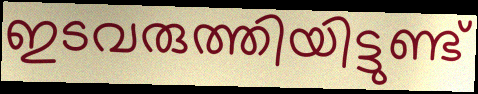
ഇടവരുത്തിയിട്ടുണ്ട്